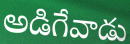
అడిగేవాడు